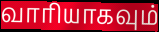
வாரியாகவும்